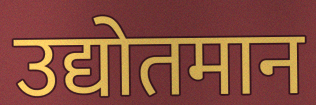
उद्योतमान